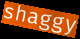
shaggy